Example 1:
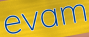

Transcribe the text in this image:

evam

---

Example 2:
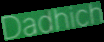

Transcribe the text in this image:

Dadhich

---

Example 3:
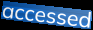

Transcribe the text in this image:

accessed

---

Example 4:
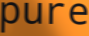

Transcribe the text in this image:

pure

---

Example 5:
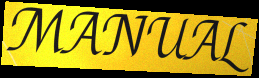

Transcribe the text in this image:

MANUAL